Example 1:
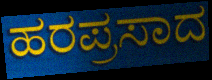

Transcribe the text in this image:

ಹರಪ್ರಸಾದ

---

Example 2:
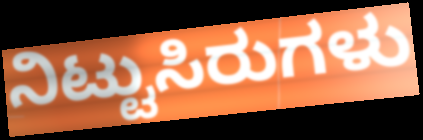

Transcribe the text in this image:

ನಿಟ್ಟುಸಿರುಗಳು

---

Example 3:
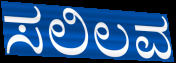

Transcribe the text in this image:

ಸಲಿಲವ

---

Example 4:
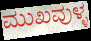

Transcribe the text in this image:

ಮುಖವುಳ್ಳ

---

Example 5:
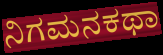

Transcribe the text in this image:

ನಿಗಮನಕಥಾ